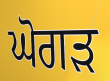
ਘੋਗੜ